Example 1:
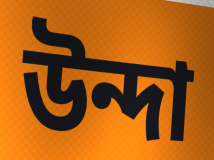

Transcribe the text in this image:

উন্দা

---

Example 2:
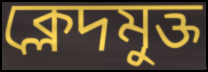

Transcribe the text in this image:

ক্লেদমুক্ত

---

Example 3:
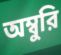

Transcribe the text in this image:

অম্বুরি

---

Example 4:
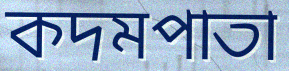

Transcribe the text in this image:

কদমপাতা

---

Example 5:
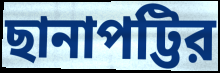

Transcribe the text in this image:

ছানাপট্টির